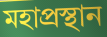
মহাপ্রস্থান